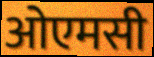
ओएमसी